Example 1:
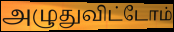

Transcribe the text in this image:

அழுதுவிட்டோம்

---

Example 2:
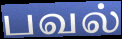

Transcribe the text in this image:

பவல்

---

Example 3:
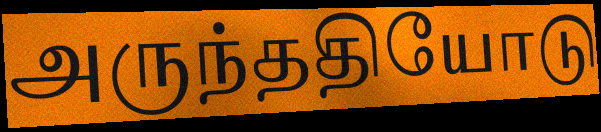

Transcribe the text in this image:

அருந்ததியோடு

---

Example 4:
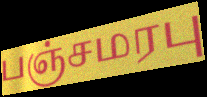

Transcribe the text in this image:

பஞ்சமரபு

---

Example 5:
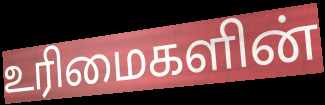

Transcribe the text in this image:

உரிமைகளின்